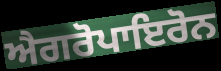
ਐਗਰੋਪਾਇਰੋਨ